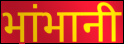
भांभानी